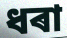
ধৰা